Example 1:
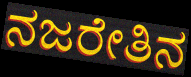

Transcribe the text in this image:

ನಜರೇತಿನ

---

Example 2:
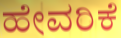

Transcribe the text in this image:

ಹೇವರಿಕೆ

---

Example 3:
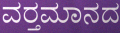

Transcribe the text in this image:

ವರ‍್ತಮಾನದ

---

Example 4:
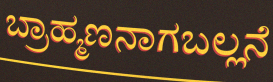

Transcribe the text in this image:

ಬ್ರಾಹ್ಮಣನಾಗಬಲ್ಲನೆ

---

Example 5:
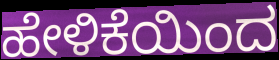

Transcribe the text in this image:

ಹೇಳಿಕೆಯಿಂದ